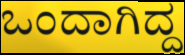
ಒಂದಾಗಿದ್ದ